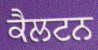
ਕੈਲਟਨ